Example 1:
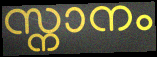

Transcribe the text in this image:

സ്നാനം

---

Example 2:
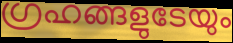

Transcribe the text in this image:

ഗ്രഹങ്ങളുടേയും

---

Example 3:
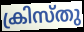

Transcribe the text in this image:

ക്രിസ്തു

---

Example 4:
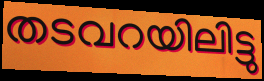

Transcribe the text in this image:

തടവറയിലിട്ടു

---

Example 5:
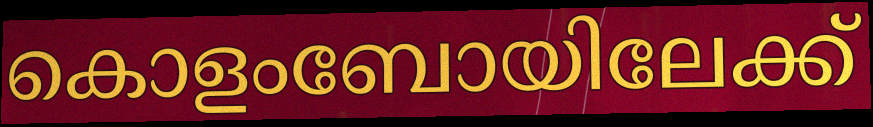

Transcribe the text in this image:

കൊളംബോയിലേക്ക്